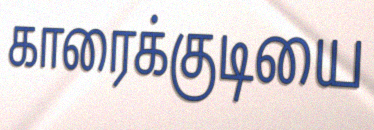
காரைக்குடியை